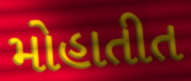
મોહાતીત